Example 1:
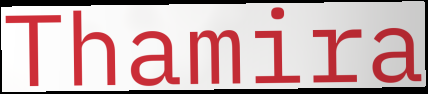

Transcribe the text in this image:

Thamira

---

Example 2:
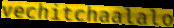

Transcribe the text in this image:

vechitchaalalo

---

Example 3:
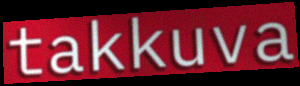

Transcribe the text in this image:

takkuva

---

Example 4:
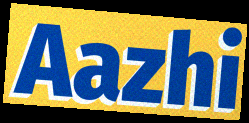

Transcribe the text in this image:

Aazhi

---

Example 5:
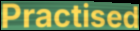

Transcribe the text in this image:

Practised